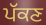
ਪੱਕਣ